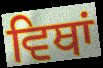
ਵਿਥਾਂ